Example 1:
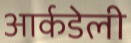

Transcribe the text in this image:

आर्कडेली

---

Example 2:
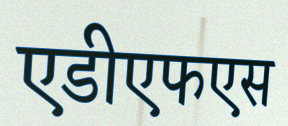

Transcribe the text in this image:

एडीएफएस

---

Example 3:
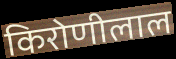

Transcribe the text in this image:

किरोणीलाल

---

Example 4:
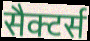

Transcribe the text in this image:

सैक्टर्स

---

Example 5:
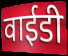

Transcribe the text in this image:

वाईडी